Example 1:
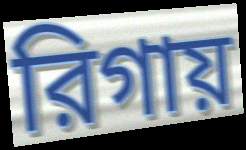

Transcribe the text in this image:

রিগায়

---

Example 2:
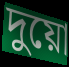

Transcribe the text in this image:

দুয়ো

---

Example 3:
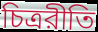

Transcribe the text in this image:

চিত্ররীতি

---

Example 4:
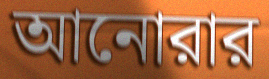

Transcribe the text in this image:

আনোরার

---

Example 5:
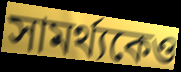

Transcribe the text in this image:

সামর্থ্যকেও